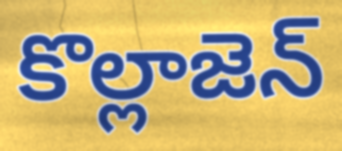
కొల్లాజెన్